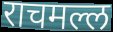
राचमल्ल